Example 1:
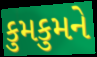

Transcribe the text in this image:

કુમકુમને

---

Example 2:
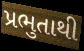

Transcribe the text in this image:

પ્રભુતાથી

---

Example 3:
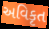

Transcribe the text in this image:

અવિકૃત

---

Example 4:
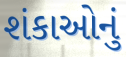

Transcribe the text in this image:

શંકાઓનું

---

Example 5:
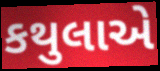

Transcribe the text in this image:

કથુલાએ